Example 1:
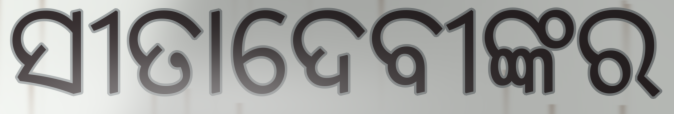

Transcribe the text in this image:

ସୀତାଦେବୀଙ୍କର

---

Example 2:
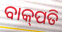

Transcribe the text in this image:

ବାକ୍‌ପତି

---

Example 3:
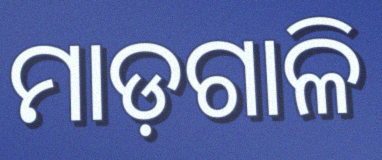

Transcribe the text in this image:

ମାଡ଼ଗାଳି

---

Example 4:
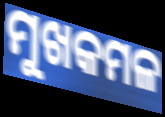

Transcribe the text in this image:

ମୁଖକମଳ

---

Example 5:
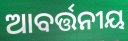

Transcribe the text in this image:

ଆବର୍ତ୍ତନୀୟ